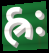
હ્રઃ